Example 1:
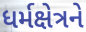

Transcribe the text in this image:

ધર્મક્ષેત્રને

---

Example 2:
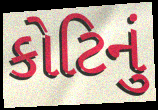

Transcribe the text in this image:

કોટિનું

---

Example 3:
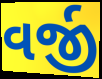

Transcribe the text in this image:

વર્જી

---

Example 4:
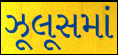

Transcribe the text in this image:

ઝૂલૂસમાં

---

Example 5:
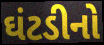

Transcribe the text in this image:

ઘંટડીનો